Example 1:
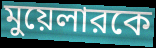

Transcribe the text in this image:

মুয়েলারকে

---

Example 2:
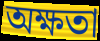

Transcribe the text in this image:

অক্ষতা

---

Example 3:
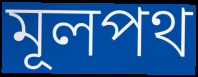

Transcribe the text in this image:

মূলপথ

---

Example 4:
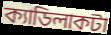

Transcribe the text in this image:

ক্যাডিলাকটা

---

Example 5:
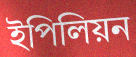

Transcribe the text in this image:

ইপিলিয়ন